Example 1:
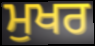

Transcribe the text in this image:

ਮੁਖਰ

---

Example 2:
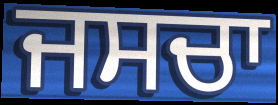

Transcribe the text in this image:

ਜਸਚਾ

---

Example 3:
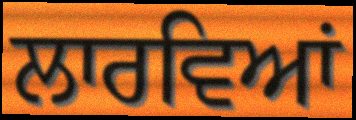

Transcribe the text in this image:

ਲਾਰਵਿਆਂ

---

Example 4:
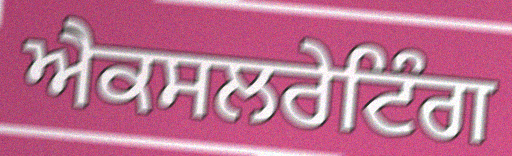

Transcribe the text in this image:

ਐਕਸਲਰੇਟਿੰਗ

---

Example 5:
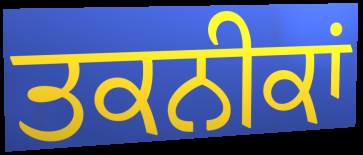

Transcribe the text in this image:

ਤਕਨੀਕਾਂ